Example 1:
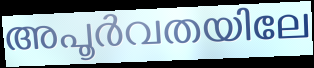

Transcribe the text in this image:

അപൂർവതയിലേ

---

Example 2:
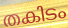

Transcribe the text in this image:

തകിടം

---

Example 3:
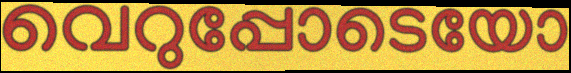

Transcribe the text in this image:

വെറുപ്പോടെയോ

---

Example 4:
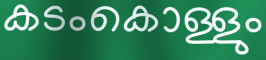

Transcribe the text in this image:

കടംകൊള്ളും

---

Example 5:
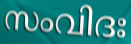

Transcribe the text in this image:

സംവിദഃ